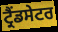
ਟ੍ਰੈਂਡਸੇਟਰ